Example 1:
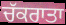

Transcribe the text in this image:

ਚੱਕਰਾਤਾ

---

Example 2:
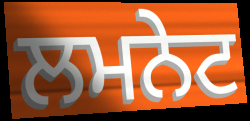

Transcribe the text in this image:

ਲਮਨੇਟ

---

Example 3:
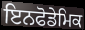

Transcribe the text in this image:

ਇਨਫੋਡੇਮਿਕ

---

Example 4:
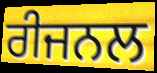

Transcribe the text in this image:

ਰੀਜਨਲ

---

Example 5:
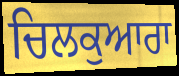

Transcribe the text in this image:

ਚਿਲਕੁਆਰਾ